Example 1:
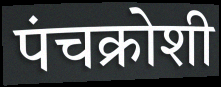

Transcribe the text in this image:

पंचक्रोशी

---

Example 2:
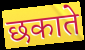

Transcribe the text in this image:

छकाते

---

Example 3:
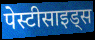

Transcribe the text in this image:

पेस्टीसाइड्स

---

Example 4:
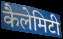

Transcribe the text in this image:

कैलेमिटी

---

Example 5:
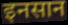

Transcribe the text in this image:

इनसान